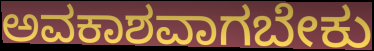
ಅವಕಾಶವಾಗಬೇಕು